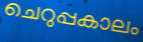
ചെറുപ്പകാലം